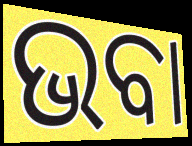
ଭବା